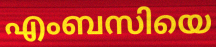
എംബസിയെ